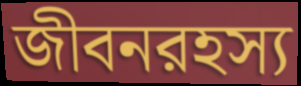
জীবনরহস্য